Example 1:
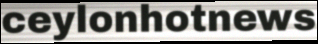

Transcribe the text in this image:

ceylonhotnews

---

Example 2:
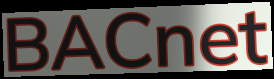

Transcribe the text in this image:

BACnet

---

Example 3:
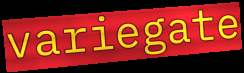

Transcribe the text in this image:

variegate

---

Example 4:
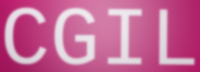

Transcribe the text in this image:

CGIL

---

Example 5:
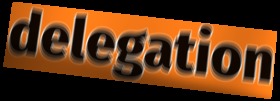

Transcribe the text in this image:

delegation